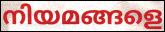
നിയമങ്ങളെ